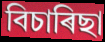
বিচাৰিছা